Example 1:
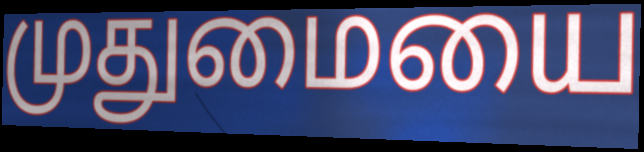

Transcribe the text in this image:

முதுமையை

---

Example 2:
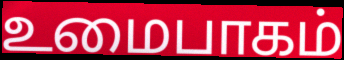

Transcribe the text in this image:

உமைபாகம்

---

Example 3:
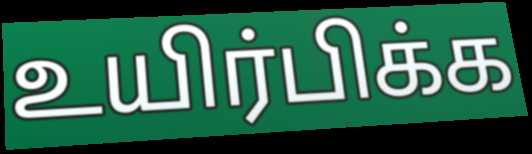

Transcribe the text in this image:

உயிர்பிக்க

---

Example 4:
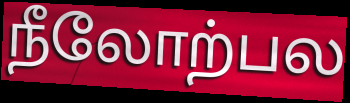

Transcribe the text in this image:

நீலோற்பல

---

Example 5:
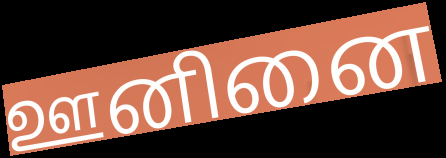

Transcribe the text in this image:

ஊனினை